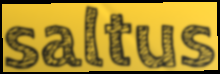
saltus